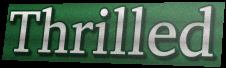
Thrilled